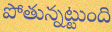
పోతున్నట్టుంది